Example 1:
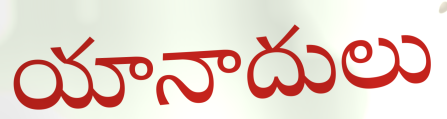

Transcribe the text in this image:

యానాదులు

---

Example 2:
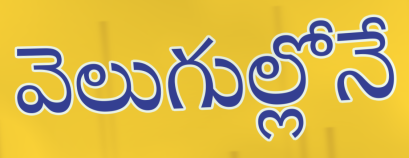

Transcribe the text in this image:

వెలుగుల్లోనే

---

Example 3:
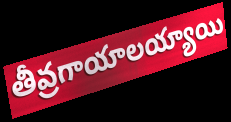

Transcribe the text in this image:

తీవ్రగాయాలయ్యాయి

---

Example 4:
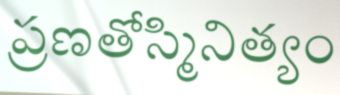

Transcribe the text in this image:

ప్రణతోస్మినిత్యం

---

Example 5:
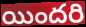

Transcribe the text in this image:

యిందరి